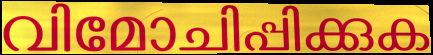
വിമോചിപ്പിക്കുക